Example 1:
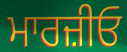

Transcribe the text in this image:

ਮਾਰਜ਼ੀਓ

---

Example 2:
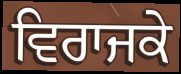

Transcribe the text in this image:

ਵਿਰਾਜਕੇ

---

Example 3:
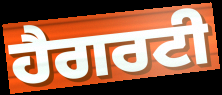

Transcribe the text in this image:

ਹੈਗਰਟੀ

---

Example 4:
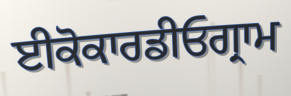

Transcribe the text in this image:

ਈਕੋਕਾਰਡੀਓਗ੍ਰਾਮ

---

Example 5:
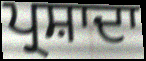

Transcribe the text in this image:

ਪ੍ਰਸ਼ਾਦਾ